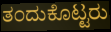
ತಂದುಕೊಟ್ಟರು